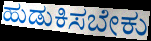
ಹುಡುಕಿಸಬೇಕು